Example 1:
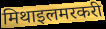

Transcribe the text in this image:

मिथाइलमरकरी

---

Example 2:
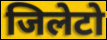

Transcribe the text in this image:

जिलेटो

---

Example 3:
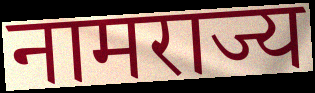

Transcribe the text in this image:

नामराज्य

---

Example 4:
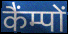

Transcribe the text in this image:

कैंम्पों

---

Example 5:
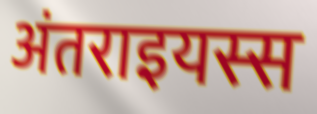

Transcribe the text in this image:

अंतराइयस्स